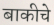
बाकीचे